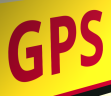
GPS